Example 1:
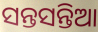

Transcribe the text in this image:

ସନ୍ତସନ୍ତିଆ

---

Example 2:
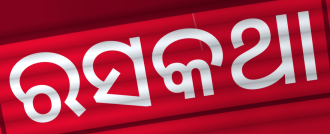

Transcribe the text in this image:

ରସକଥା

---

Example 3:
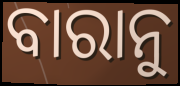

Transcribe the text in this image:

ବାରାନୁ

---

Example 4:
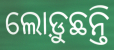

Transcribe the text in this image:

ଲୋଡ଼ୁଛନ୍ତି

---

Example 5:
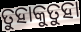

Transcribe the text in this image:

ତୁହାକୁତୁହା